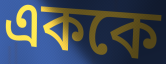
এককে